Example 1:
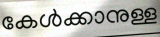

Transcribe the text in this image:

കേൾക്കാനുള്ള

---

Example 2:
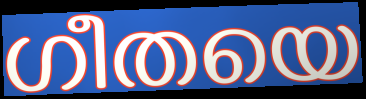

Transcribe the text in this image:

ഗീതയെ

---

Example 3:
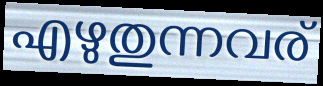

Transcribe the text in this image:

എഴുതുന്നവര്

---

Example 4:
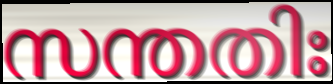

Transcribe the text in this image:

സന്തതിഃ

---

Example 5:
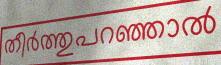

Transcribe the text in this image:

തീർത്തുപറഞ്ഞാൽ